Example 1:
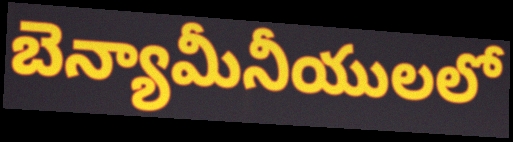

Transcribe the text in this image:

బెన్యామీనీయులలో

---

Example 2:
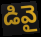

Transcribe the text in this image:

డివై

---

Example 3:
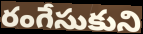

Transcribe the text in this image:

రంగేసుకుని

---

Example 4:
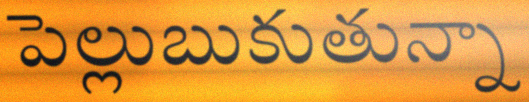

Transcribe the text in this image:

పెల్లుబుకుతున్నా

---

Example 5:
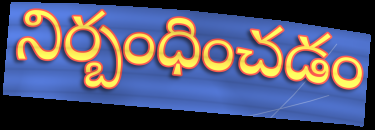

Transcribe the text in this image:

నిర్బంధించడం